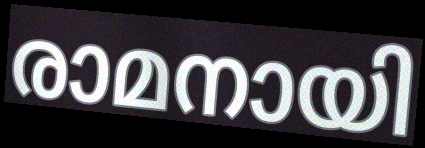
രാമനായി